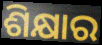
ଶିକ୍ଷାର